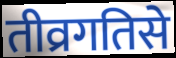
तीव्रगतिसे